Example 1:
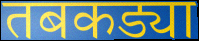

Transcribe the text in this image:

तबकड्या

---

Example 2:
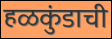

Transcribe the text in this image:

हळकुंडाची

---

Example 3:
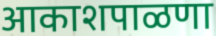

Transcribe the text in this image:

आकाशपाळणा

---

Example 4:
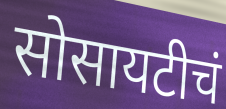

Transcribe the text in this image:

सोसायटीचं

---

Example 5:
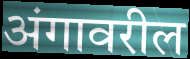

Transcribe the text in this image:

अंगावरील